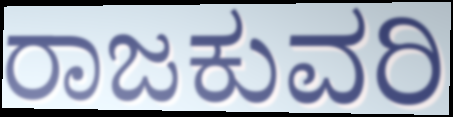
ರಾಜಕುವರಿ